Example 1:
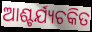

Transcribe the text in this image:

ଆଶ୍ଚର୍ଯ୍ୟଚକିତ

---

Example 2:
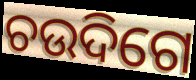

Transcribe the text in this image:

ଚଉଦିଗେ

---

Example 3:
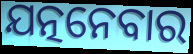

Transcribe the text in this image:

ଯତ୍ନନେବାର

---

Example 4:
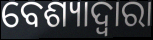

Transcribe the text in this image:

ବେଶ୍ୟାଦ୍ୱାରା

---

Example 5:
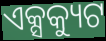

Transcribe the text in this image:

ଏକ୍ସକ୍ୟୁଟ